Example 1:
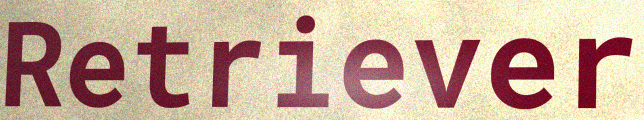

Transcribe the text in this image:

Retriever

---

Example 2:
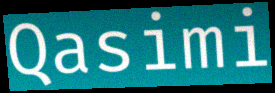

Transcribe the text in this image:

Qasimi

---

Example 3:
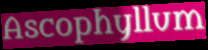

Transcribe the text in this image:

Ascophyllum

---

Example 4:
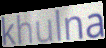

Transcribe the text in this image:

khulna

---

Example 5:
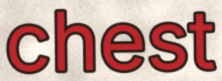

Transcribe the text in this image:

chest